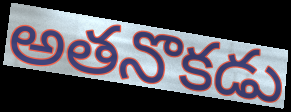
అతనొకడు